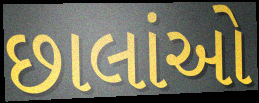
છાલાંઓ